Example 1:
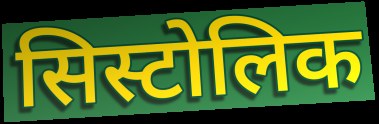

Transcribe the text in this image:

सिस्टोलिक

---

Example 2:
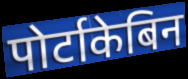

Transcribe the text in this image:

पोर्टाकेबिन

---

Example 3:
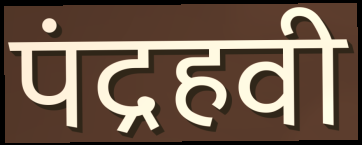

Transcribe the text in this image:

पंद्रहवी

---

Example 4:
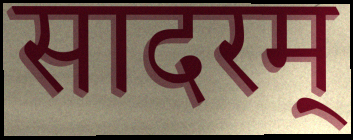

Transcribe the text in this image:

सादरम्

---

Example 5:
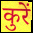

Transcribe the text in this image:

कुरें